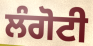
ਲੰਗੋਟੀ